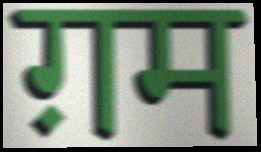
ग़म